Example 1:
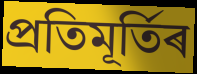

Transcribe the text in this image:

প্ৰতিমূৰ্তিৰ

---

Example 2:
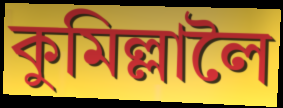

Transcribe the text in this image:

কুমিল্লালৈ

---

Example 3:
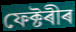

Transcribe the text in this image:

ফেক্টৰীৰ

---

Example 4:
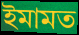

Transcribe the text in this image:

ইমামত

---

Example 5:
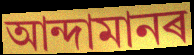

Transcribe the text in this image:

আন্দামানৰ